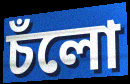
চঁলো